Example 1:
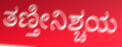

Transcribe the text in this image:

ತಣ್ತೀನಿಶ್ಚಯ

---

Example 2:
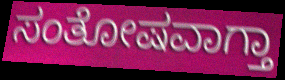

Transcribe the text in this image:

ಸಂತೋಷವಾಗ್ತಾ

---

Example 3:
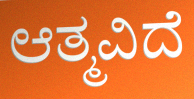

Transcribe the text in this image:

ಆತ್ಮವಿದೆ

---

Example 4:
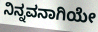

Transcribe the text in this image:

ನಿನ್ನವನಾಗಿಯೇ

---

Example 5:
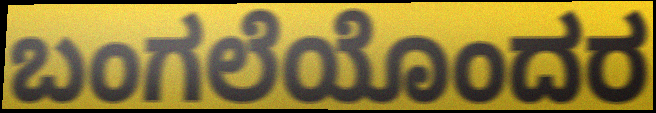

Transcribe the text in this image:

ಬಂಗಲೆಯೊಂದರ